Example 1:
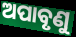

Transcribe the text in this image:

ଅପାବୃଣୁ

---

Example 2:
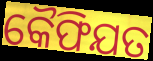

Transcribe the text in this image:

କୈଫିଯତ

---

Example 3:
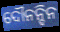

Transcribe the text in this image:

ଦୌନନ୍ଦିନ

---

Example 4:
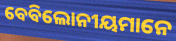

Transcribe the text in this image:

ବେବିଲୋନୀୟମାନେ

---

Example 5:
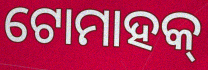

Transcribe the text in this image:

ଟୋମାହକ୍